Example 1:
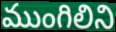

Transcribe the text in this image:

ముంగిలిని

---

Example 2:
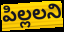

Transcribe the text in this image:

పిల్లలని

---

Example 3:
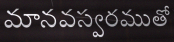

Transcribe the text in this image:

మానవస్వరముతో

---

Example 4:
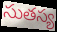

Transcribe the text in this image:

సుతస్య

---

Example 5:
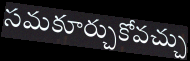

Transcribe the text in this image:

సమకూర్చుకోవచ్చు